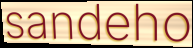
sandeho